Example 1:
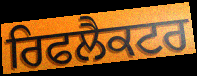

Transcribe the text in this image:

ਰਿਫਲੈਕਟਰ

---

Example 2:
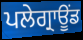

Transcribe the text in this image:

ਪਲੇਗ੍ਰਾਊਂਡ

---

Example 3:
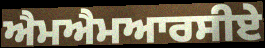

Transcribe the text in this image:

ਐਮਐਮਆਰਸੀਏ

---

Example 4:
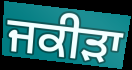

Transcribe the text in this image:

ਜਕੀੜਾ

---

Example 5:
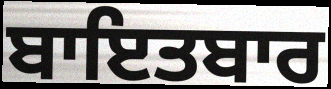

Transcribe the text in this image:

ਬਾਇਤਬਾਰ